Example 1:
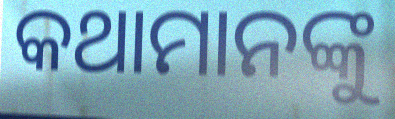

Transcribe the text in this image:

କଥାମାନଙ୍କୁ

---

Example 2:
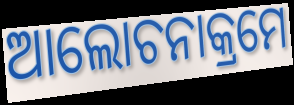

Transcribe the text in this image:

ଆଲୋଚନାକ୍ରମେ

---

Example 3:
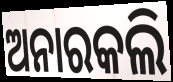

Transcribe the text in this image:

ଅନାରକଲି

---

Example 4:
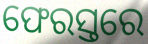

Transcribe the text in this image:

ଫେରସ୍ତରେ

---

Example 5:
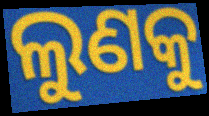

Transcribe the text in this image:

ଲୁଣକୁ